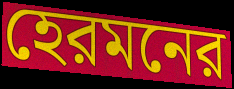
হেরমনের